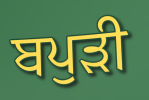
ਬਪੁੜੀ